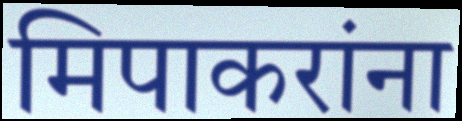
मिपाकरांना